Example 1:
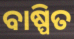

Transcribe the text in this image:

ବାଷ୍ପିତ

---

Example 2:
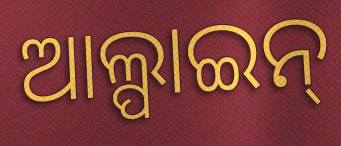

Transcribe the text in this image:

ଆଲ୍ପାଇନ୍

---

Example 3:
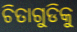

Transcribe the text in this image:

ଚିତାଗୁଡିକୁ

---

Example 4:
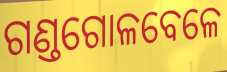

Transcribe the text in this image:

ଗଣ୍ଡଗୋଳବେଳେ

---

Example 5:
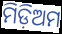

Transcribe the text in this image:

ମିଡ଼ିଅମ